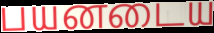
பயனடைய